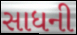
સાધની